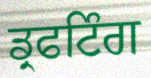
ਡ੍ਰਫਟਿੰਗ